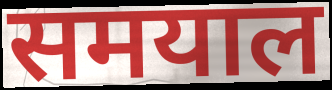
समयाल